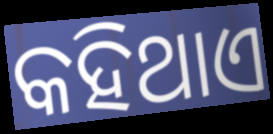
କହିଥାଏ